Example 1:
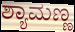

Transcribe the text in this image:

ಶ್ಯಾಮಣ್ಣ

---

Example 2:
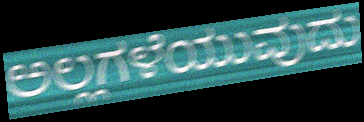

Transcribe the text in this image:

ಅಲ್ಲಗಳೆಯುವುದು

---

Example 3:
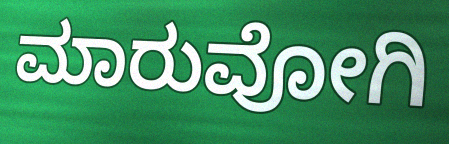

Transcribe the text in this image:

ಮಾರುವೋಗಿ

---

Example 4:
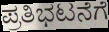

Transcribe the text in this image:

ಪ್ರತಿಭಟನೆಗೆ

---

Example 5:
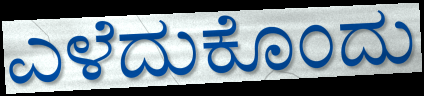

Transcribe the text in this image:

ಎಳೆದುಕೊಂದು